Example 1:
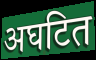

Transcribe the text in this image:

अघटित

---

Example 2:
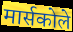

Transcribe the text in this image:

मार्सकोले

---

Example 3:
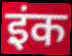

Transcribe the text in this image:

इंक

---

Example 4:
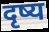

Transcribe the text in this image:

दृष्य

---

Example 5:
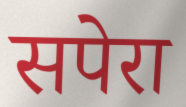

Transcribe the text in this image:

सपेरा